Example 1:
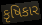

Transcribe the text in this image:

કૃષિકાર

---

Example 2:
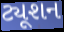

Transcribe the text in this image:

ટ્યૂશન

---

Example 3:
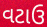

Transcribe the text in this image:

વટાઉ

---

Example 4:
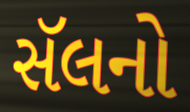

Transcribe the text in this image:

સૅલનો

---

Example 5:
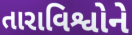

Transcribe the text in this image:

તારાવિશ્વોને